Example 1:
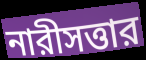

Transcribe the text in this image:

নারীসত্তার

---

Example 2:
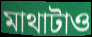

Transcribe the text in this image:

মাথাটাও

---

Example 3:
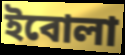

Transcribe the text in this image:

ইবোলা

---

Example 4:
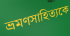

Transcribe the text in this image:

ভ্রমণসাহিত্যকে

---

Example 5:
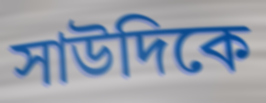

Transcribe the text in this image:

সাউদিকে